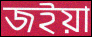
জইয়া